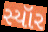
સ્યૉર